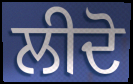
ਲੀਦੋ